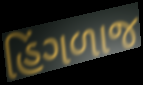
હિંગળાજ